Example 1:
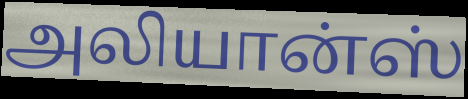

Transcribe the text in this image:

அலியான்ஸ்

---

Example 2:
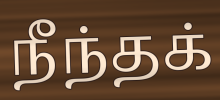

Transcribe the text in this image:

நீந்தக்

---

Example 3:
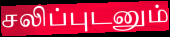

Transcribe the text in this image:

சலிப்புடனும்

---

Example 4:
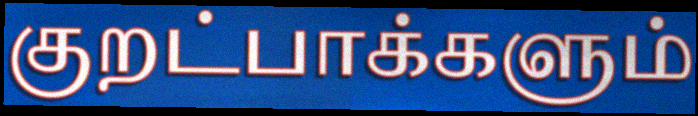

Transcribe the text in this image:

குறட்பாக்களும்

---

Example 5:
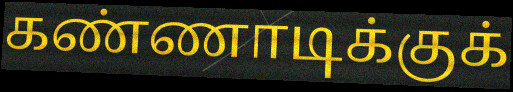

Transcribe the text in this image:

கண்ணாடிக்குக்